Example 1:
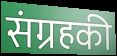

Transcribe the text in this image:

संग्रहकी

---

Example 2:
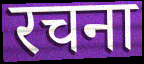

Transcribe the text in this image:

रचना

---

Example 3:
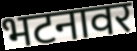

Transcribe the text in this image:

भटनावर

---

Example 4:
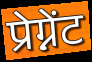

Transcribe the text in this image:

प्रेग्नेंट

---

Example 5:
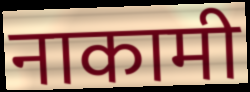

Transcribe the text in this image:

नाकामी